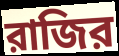
রাজির